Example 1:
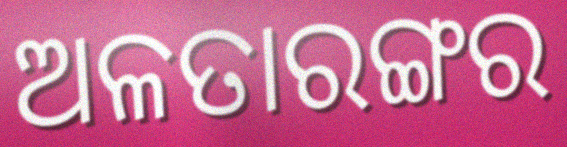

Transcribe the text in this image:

ଅଳତାରଙ୍ଗର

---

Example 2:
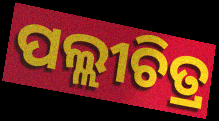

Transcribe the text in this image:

ପଲ୍ଲୀଚିତ୍ର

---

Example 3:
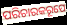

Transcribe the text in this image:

ପରିଚାରକରୂପେ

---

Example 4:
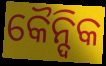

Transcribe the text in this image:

କୈନ୍ଦିକ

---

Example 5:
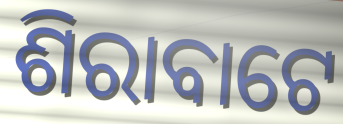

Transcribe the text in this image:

ଶିରାବାଟେ